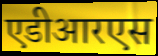
एडीआरएस